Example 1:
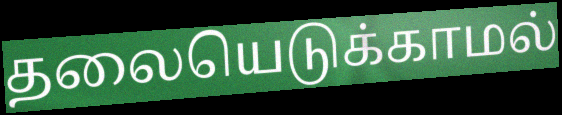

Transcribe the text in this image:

தலையெடுக்காமல்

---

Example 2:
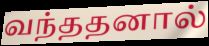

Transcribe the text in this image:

வந்ததனால்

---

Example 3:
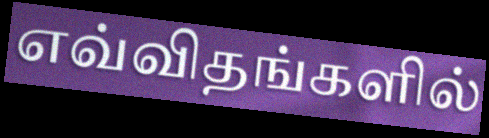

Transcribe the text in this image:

எவ்விதங்களில்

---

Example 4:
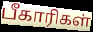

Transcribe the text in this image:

பீகாரிகள்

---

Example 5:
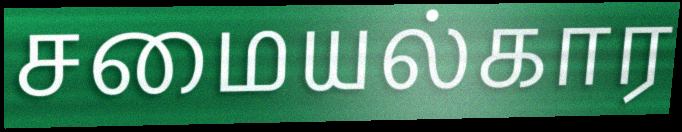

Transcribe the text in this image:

சமையல்கார